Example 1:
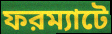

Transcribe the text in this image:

ফরম্যাটে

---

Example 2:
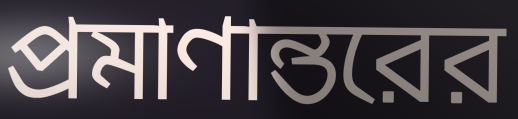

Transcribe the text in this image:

প্রমাণান্তরের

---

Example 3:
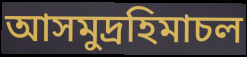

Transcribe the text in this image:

আসমুদ্রহিমাচল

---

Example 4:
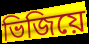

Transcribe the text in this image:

ভিজিয়ে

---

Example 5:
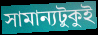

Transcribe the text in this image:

সামান্যটুকুই